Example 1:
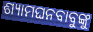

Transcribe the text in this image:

ଶ୍ୟାମଘନବାବୁଙ୍କୁ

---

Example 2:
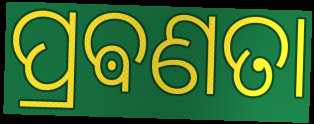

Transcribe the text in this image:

ପ୍ରଵଣତା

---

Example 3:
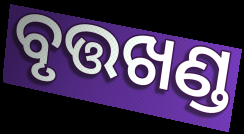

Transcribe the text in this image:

ବୃତ୍ତଖଣ୍ଡ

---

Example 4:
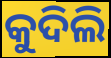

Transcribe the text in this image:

କୁଦିଲି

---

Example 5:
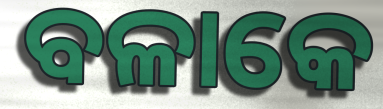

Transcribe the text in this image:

ବଳାକେ